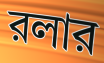
রলার